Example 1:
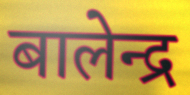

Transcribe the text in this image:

बालेन्द्र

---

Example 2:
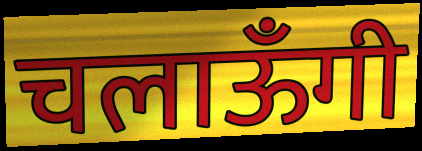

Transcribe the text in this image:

चलाऊँगी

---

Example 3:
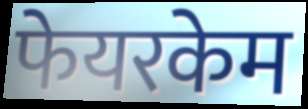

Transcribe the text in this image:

फेयरकेम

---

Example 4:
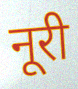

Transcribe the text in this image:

नूरी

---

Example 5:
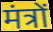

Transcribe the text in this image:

मंत्रों